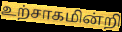
உற்சாகமின்றி